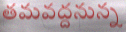
తమవద్దనున్న